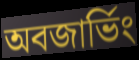
অবজার্ভিং